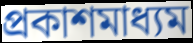
প্রকাশমাধ্যম